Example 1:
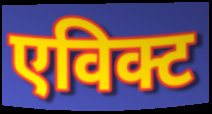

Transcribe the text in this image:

एविक्ट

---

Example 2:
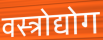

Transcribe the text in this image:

वस्त्रोद्योग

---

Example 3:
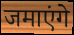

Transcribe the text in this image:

जमाएंगे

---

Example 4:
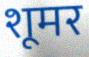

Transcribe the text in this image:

शूमर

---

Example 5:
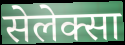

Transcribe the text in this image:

सेलेक्सा